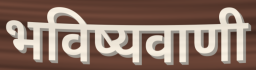
भविष्यवाणी